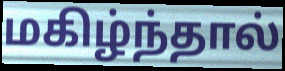
மகிழ்ந்தால்